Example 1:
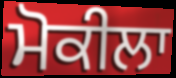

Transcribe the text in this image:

ਮੋਕੀਲਾ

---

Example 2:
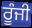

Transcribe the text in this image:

ਰੂੰਜੀ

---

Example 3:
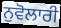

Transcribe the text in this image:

ਨੁਵੋਲਾਰੀ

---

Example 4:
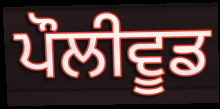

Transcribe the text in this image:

ਪੌਲੀਵੂਡ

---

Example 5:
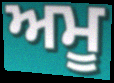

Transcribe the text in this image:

ਅਮੂ